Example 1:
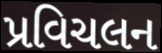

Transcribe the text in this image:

પ્રવિચલન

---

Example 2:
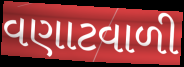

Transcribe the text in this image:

વણાટવાળી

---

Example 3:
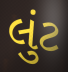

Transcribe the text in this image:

લુંટ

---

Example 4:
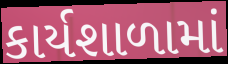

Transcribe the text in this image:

કાર્યશાળામાં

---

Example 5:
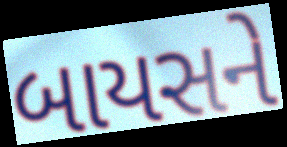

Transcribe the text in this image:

બાયસને